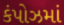
કંપોઝમાં